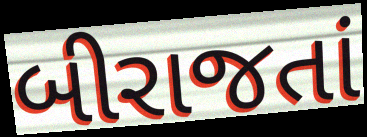
બીરાજતાં